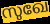
സുഖേ